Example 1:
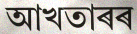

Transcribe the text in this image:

আখতাৰৰ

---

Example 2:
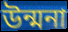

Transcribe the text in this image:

উন্মনা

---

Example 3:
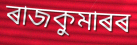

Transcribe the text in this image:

ৰাজকুমাৰৰ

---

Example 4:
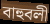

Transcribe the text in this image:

বাহুবলী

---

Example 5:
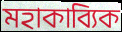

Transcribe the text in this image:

মহাকাব্যিক